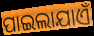
ପାଇଲାଯାଏଁ